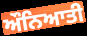
ਔਨਿਆਤੀ